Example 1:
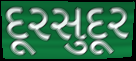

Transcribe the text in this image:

દૂરસુદૂર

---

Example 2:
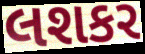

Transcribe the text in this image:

લશકર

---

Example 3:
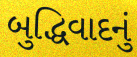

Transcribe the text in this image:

બુદ્ધિવાદનું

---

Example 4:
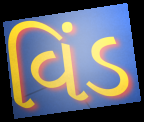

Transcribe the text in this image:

વિંડ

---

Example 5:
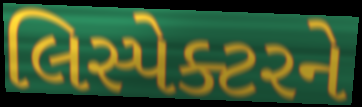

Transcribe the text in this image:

લિસ્પેક્ટરને